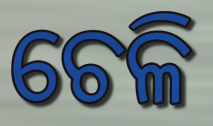
ଚେଳି